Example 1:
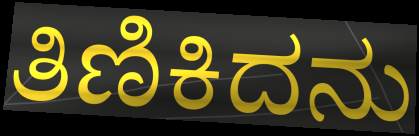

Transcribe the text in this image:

ತಿಣಿಕಿದನು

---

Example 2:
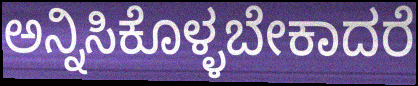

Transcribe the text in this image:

ಅನ್ನಿಸಿಕೊಳ್ಳಬೇಕಾದರೆ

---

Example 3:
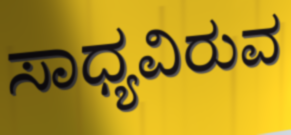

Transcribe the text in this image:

ಸಾಧ್ಯವಿರುವ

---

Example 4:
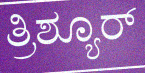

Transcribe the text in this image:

ತ್ರಿಶ್ಯೂರ್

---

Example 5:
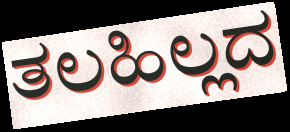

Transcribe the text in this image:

ತಲಹಿಲ್ಲದ